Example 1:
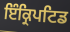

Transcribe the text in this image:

ਇੰਕ੍ਰਿਪਟਿਡ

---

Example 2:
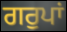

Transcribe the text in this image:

ਗਰੁਪਾਂ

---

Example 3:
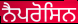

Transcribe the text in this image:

ਨੈਪਰੋਸਿਨ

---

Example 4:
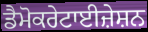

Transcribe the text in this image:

ਡੈਮੋਕਰੇਟਾਈਜ਼ੇਸ਼ਨ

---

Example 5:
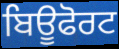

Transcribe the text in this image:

ਬਿਊਫੋਰਟ